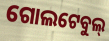
ଗୋଲଟେବୁଲ୍